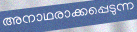
അനാഥരാക്കപ്പെടുന്ന